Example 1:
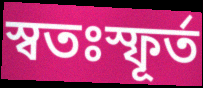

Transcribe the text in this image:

স্বতঃস্ফূৰ্ত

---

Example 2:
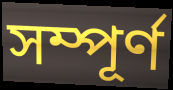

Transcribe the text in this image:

সম্পূৰ্ণ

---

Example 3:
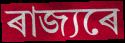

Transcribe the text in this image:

ৰাজ্যৰে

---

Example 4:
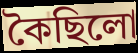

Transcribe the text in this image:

কৈছিলো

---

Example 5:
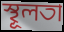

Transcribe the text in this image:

স্থূলতা